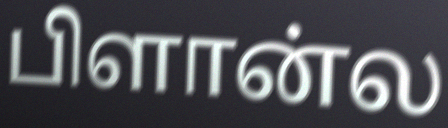
பிளான்ல